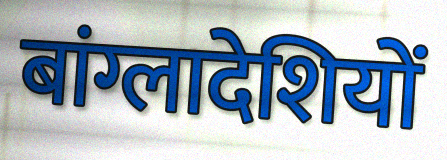
बांग्लादेशियों